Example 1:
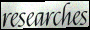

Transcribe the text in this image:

researches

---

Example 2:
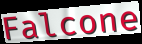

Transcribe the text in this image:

Falcone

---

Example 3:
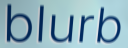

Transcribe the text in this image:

blurb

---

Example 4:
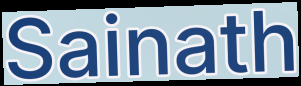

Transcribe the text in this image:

Sainath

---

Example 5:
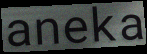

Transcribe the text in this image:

aneka